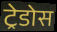
ट्रेडोस